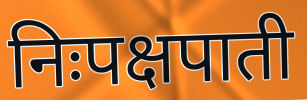
निःपक्षपाती